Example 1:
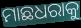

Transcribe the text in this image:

ମାଛଧରାକୁ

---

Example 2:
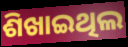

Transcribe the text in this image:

ଶିଖାଇଥିଲ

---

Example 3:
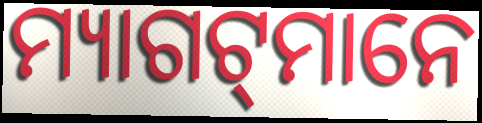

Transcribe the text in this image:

ମ୍ୟାଗଟ୍‌ମାନେ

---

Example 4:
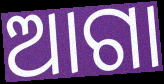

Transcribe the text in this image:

ଆଗା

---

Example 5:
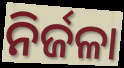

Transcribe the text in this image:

ନିର୍ଜଳା